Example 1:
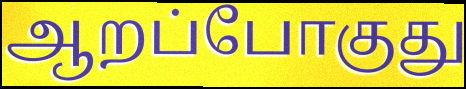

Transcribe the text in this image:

ஆறப்போகுது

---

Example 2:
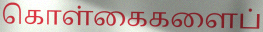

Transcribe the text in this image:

கொள்கைகளைப்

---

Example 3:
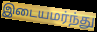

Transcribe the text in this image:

இடையமர்ந்து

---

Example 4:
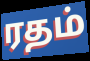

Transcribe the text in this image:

ரதம்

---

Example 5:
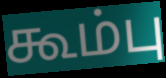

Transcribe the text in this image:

கூம்பு